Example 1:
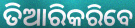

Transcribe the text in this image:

ତିଆରିକରିବେ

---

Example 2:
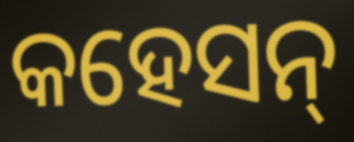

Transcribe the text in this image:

କହେସନ୍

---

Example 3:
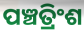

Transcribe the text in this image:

ପଞ୍ଚତ୍ରିଂଶ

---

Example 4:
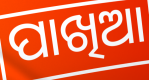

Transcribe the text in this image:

ପାଖିଆ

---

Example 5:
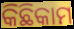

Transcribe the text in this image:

କିଛିକାମ